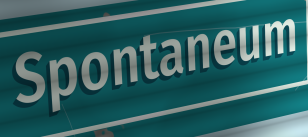
Spontaneum